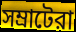
সম্রাটেরা